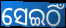
ସେଇଠିଁ